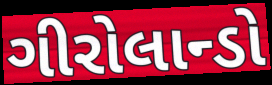
ગીરોલાન્ડો